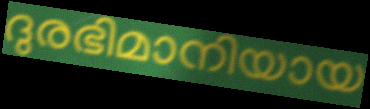
ദുരഭിമാനിയായ